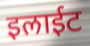
इलाईट